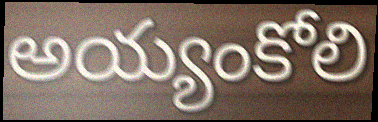
అయ్యంకోలి